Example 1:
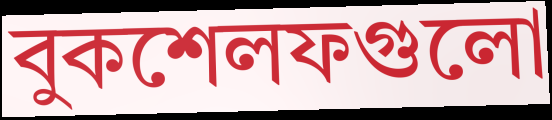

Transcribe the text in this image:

বুকশেলফগুলো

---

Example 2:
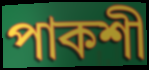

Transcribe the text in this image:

পাকশী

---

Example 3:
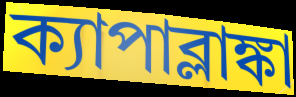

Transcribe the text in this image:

ক্যাপাব্লাঙ্কা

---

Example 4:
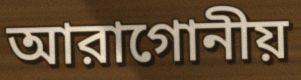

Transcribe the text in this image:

আরাগোনীয়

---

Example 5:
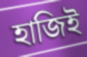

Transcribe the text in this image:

হাজিই